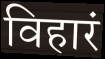
विहारं